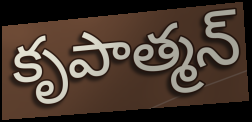
కృపాత్మన్